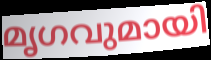
മൃഗവുമായി